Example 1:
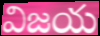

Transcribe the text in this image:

విజయ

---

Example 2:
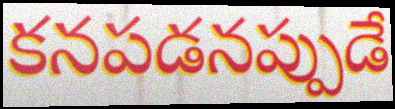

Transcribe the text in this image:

కనపడనప్పుడే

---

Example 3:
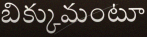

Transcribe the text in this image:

బిక్కుమంటూ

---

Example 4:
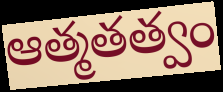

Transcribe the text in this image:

ఆత్మతత్వం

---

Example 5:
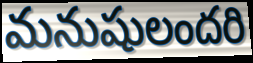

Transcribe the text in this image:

మనుషులందరి